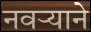
नवर्‍याने